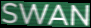
SWAN